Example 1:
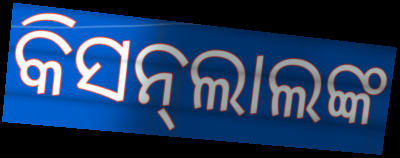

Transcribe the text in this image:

କିସନ୍‌ଲାଲଙ୍କ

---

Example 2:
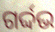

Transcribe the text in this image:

ଗର୍ଦ୍ଦଭ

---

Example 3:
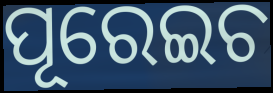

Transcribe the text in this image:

ପୂରେଇଚ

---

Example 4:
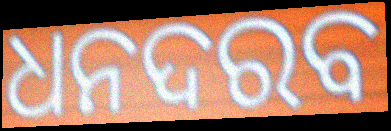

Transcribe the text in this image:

ଧନଦରବ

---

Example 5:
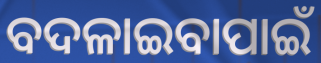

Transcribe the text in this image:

ବଦଳାଇବାପାଇଁ